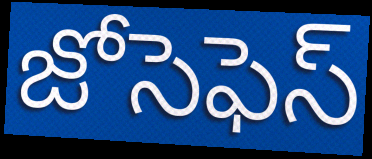
జోసెఫెస్